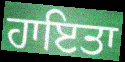
ਹਾਇਤਾ